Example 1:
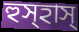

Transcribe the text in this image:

হুস্‌হাস্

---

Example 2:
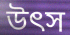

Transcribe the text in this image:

উত্‍স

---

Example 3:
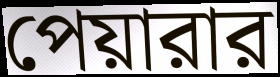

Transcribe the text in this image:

পেয়ারার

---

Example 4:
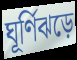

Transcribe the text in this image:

ঘূর্ণিঝড়ে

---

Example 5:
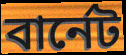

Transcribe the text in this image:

বার্নেট